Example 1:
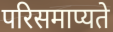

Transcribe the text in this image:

परिसमाप्यते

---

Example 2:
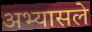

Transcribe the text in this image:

अभ्यासले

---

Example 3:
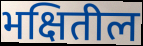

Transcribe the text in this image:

भक्षितील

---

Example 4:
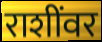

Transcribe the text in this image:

राशींवर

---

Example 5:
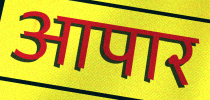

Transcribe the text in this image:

आपार